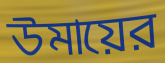
উমায়ের